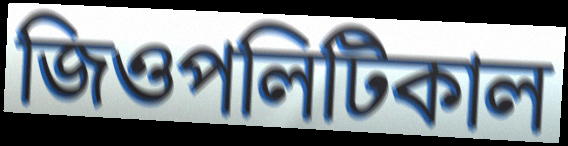
জিওপলিটিকাল